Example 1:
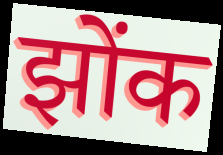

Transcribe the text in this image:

झोंक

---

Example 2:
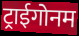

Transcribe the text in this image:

ट्राईगोनम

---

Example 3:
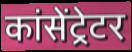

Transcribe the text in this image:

कांसेंट्रेटर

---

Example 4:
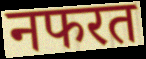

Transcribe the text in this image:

नफरत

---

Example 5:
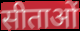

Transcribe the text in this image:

सीताओं